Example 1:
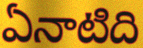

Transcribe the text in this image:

ఏనాటిది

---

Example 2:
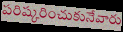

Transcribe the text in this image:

పరిష్కరించుకునేవారు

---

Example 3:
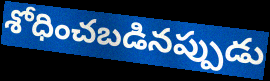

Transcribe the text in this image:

శోధించబడినప్పుడు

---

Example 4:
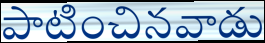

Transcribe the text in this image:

పాటించినవాడు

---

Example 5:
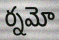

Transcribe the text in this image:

ర్నమో